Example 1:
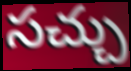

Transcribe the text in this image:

సచ్చు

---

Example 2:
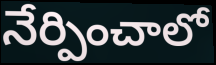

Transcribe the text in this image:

నేర్పించాలో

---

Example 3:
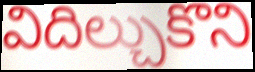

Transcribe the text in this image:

విదిల్చుకొని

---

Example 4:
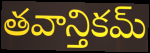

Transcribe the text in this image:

తవాన్తికమ్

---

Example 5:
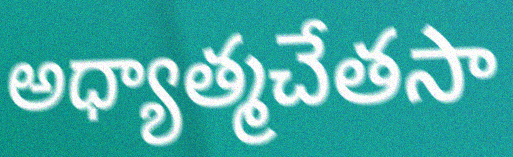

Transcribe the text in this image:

అధ్యాత్మచేతసా